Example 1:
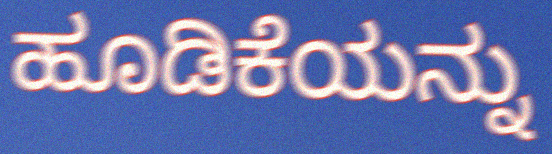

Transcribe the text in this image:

ಹೂಡಿಕೆಯನ್ನು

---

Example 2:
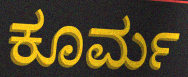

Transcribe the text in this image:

ಕೂರ್ಮ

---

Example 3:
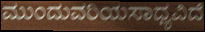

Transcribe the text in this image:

ಮುಂದುವರಿಯಸಾಧ್ಯವಿದೆ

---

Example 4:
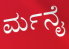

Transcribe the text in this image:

ರ್ಮನೈ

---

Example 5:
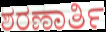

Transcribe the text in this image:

ಶರಣಾರ್ತಿ